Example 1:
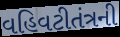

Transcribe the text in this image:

વહિવટીતંત્રની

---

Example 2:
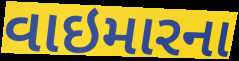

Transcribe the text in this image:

વાઇમારના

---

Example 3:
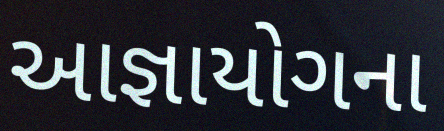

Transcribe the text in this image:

આજ્ઞાયોગના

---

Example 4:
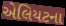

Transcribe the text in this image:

એલિયટના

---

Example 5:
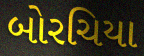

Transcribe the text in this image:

બોરચિયા